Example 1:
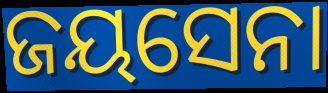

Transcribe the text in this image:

ଜୟସେନା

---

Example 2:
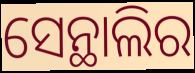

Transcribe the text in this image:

ସେନ୍ଥାଲିର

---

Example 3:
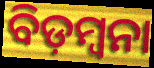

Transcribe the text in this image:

ବିଡ଼ମ୍ୱନା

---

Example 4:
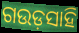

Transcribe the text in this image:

ଗଉଡ଼ସାହି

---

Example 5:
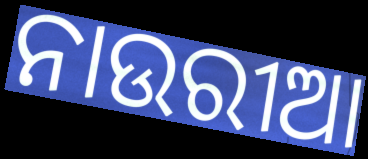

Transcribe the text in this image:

ନାଉରୀଆ